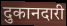
दुकानदारी